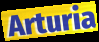
Arturia